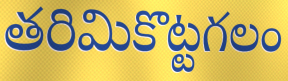
తరిమికొట్టగలం